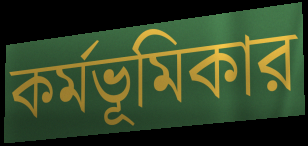
কর্মভূমিকার